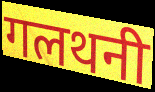
गलथनी